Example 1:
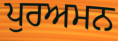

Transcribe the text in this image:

ਪੁਰਅਮਨ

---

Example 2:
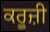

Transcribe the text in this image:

ਕਰੂਜ਼ੀ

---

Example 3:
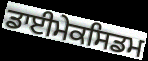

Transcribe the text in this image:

ਡਾਈਮੇਕਸਿਡਮ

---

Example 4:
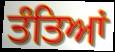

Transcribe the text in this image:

ਤੰਤਿਆਂ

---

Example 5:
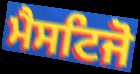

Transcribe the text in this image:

ਮੈਸਟਿਜੋ